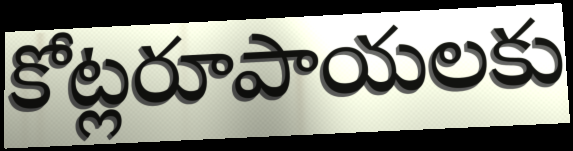
కోట్లరూపాయలకు